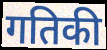
गतिकी